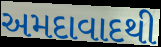
અમદાવાદથી